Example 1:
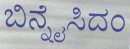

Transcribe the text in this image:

ಬಿನ್ನೈಸಿದಂ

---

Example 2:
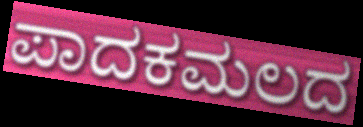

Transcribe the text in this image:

ಪಾದಕಮಲದ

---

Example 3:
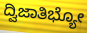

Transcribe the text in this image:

ದ್ವಿಜಾತಿಭ್ಯೋ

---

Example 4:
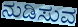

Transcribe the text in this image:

ನುಡಿಸುವ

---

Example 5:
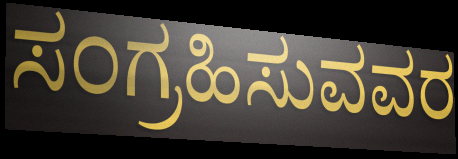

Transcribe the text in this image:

ಸಂಗ್ರಹಿಸುವವರ